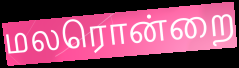
மலரொன்றை